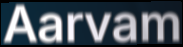
Aarvam